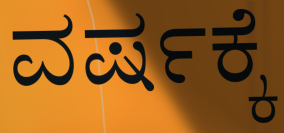
ವರ್ಷಕ್ಕೆ